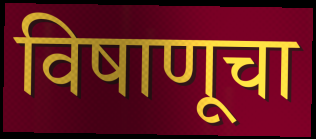
विषाणूचा